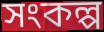
সংকল্প